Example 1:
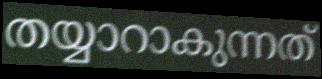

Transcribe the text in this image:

തയ്യാറാകുന്നത്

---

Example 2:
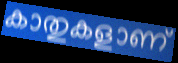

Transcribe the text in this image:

കാതുകളാണ്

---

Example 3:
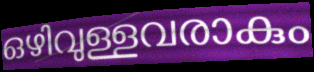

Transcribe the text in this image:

ഒഴിവുള്ളവരാകും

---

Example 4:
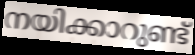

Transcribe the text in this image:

നയിക്കാറുണ്ട്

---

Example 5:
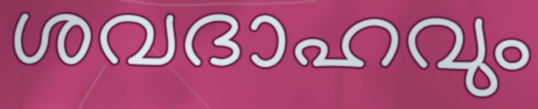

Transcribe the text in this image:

ശവദാഹവും